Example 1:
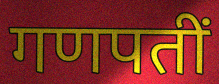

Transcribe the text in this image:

गणपतीं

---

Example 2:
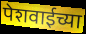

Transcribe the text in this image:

पेशवाईच्या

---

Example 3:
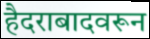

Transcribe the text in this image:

हैदराबादवरून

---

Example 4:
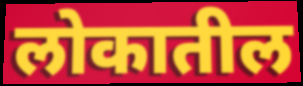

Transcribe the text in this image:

लोकातील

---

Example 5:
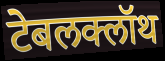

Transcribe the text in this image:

टेबलक्लॉथ